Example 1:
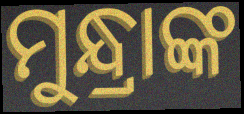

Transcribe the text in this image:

ମୁନ୍ଧ୍ରାଙ୍କ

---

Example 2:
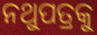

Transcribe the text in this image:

ନଥୁପତ୍ରକୁ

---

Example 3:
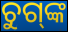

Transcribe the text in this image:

ଚୁଗ୍‌ଙ୍କ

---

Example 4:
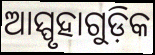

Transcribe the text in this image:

ଆସ୍ପୃହାଗୁଡ଼ିକ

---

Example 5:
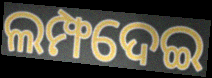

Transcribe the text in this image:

ଲମ୍ଫଦେଇ